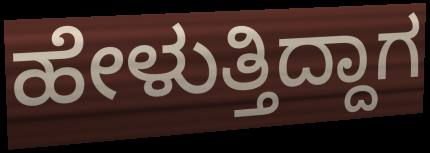
ಹೇಳುತ್ತಿದ್ದಾಗ